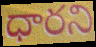
ధారని